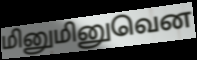
மினுமினுவென